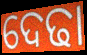
ଦେଢା